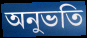
অনুভতি